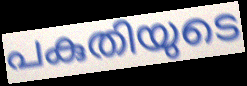
പകുതിയുടെ